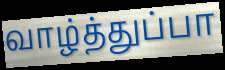
வாழ்த்துப்பா